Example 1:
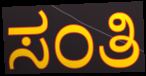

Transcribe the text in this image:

ಸಂತಿ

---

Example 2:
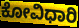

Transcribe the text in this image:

ಕೋವಿಧಾರಿ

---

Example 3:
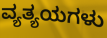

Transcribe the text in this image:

ವ್ಯತ್ಯಯಗಳು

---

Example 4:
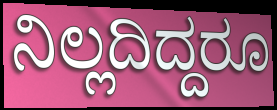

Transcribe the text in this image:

ನಿಲ್ಲದಿದ್ದರೂ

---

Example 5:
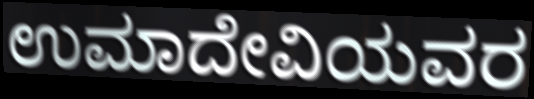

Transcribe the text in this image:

ಉಮಾದೇವಿಯವರ